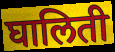
घालिती